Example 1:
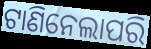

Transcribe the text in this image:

ଟାଣିନେଲାପରି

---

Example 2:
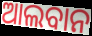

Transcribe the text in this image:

ଆଲବାନ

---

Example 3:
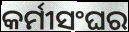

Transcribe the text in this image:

କର୍ମୀସଂଘର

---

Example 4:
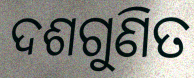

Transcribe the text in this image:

ଦଶଗୁଣିତ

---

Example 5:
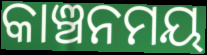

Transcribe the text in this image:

କାଞ୍ଚନମୟ